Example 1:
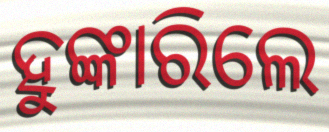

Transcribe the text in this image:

ହୁଙ୍କାରିଲେ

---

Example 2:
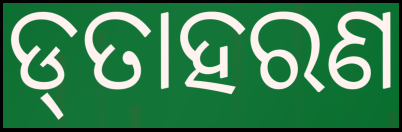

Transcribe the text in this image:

ଡ୍‌ତାହରଣ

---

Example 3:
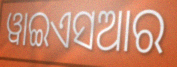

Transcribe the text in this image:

ୱାଇଏସଆର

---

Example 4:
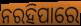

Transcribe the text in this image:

ନରହିପାରେ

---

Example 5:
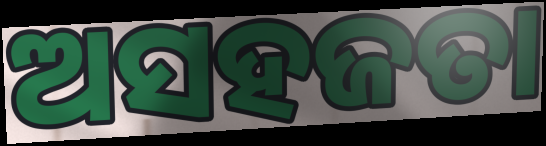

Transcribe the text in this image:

ଅସହଜତା